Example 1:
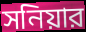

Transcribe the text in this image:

সনিয়ার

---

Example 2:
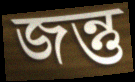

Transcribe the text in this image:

জন্তু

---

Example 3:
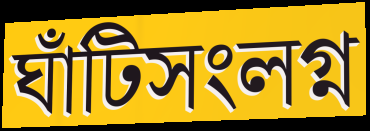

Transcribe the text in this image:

ঘাঁটিসংলগ্ন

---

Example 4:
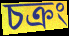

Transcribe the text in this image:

চক্রং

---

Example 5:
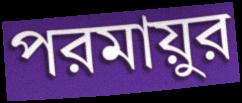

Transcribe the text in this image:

পরমায়ুর